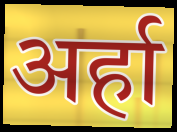
अर्हा